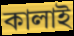
কালাই